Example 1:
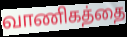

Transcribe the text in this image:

வாணிகத்தை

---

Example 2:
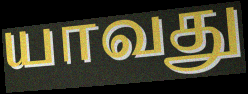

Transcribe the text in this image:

யாவது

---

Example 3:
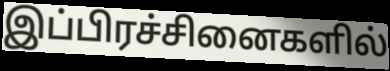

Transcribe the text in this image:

இப்பிரச்சினைகளில்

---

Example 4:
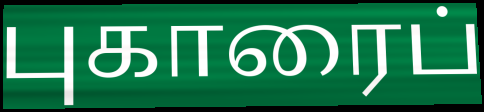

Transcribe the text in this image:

புகாரைப்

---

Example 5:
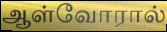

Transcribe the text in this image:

ஆள்வோரால்